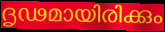
ദൃഢമായിരിക്കും